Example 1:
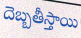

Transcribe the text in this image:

దెబ్బతీస్తాయి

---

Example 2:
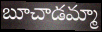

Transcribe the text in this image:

బూచాడమ్మా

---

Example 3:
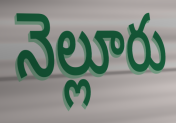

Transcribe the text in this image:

నెల్లూరు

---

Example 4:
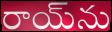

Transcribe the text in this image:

రాయ్‌ను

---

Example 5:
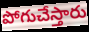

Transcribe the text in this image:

పోగుచేస్తారు